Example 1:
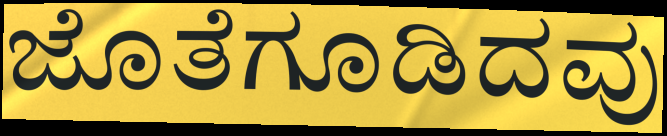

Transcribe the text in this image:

ಜೊತೆಗೂಡಿದವು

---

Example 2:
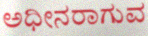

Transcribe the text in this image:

ಅಧೀನರಾಗುವ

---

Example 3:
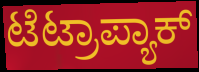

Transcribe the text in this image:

ಟೆಟ್ರಾಪ್ಯಾಕ್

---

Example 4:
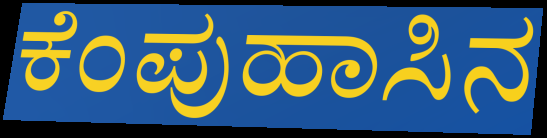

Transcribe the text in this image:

ಕೆಂಪುಹಾಸಿನ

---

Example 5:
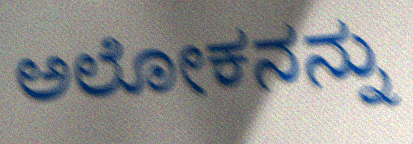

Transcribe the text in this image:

ಅಲೋಕನನ್ನು